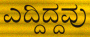
ಎದ್ದಿದ್ದವು